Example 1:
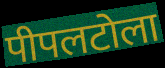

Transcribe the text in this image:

पीपलटोला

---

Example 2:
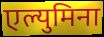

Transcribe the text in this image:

एल्युमिना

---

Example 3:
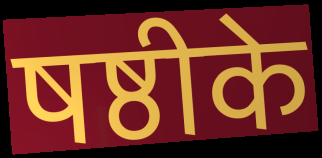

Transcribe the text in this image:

षष्ठीके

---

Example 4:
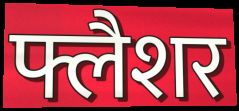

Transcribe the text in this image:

फ्लैशर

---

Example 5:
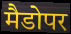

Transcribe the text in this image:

मैडोपर